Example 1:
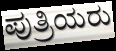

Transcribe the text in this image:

ಪುತ್ರಿಯರು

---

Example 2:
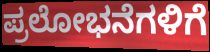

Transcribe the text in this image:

ಪ್ರಲೋಭನೆಗಳಿಗೆ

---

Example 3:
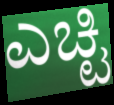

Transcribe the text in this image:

ಎಚ್ಟಿ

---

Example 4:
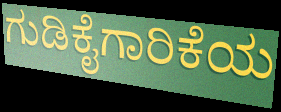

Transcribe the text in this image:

ಗುಡಿಕೈಗಾರಿಕೆಯ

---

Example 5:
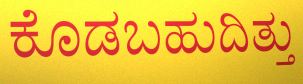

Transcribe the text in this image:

ಕೊಡಬಹುದಿತ್ತು